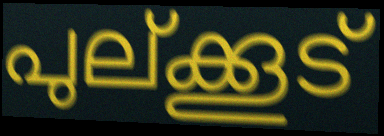
പുല്ക്കൂട്